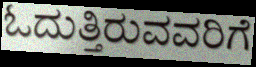
ಓದುತ್ತಿರುವವರಿಗೆ